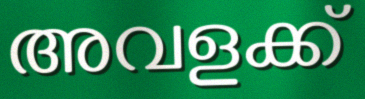
അവളക്ക്